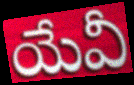
యేవీ